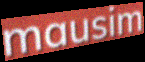
mausim